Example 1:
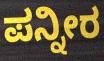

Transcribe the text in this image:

ಪನ್ನೀರ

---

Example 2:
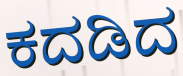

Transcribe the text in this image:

ಕದಡಿದ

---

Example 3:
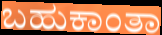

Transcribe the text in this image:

ಬಹುಕಾಂತಾ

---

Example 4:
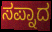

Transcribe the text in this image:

ಸಪ್ನಾದ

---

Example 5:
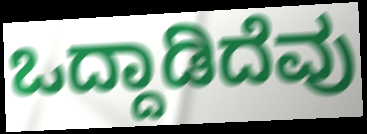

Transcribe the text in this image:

ಒದ್ದಾಡಿದೆವು